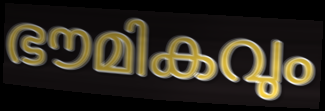
ഭൗമികവും